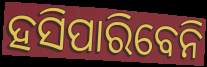
ହସିପାରିବେନି